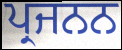
ਪ੍ਰਜਨਨ